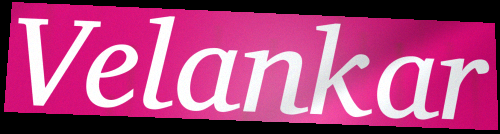
Velankar